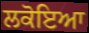
ਲਕੋਇਆ